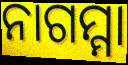
ନାଗମ୍ମା